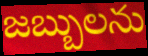
జబ్బులను